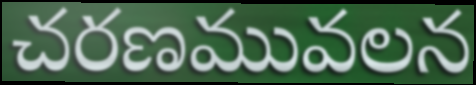
చరణమువలన